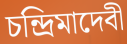
চন্দ্রিমাদেবী